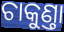
ଚାକୁଣ୍ତା